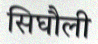
सिघौली